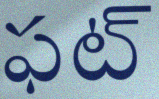
ఫట్